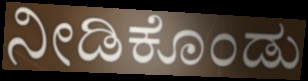
ನೀಡಿಕೊಂಡು